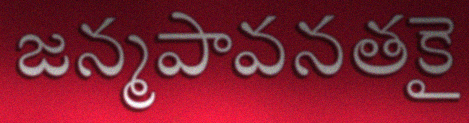
జన్మపావనతకై